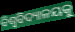
ବିଶ୍ବବିଦ୍ୟାଳୟକୁ